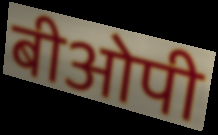
बीओपी